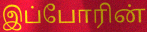
இப்போரின்